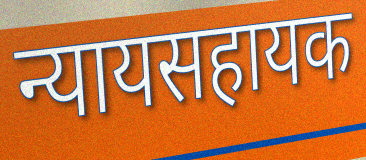
न्यायसहायक